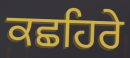
ਕਛਹਿਰੇ